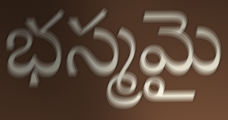
భస్మమై